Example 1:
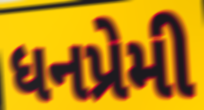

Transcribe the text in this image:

ધનપ્રેમી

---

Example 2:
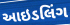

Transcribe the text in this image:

આઇડલિંગ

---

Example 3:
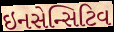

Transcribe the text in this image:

ઇનસેન્સિટિવ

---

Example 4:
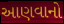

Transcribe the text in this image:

આણવાનો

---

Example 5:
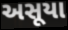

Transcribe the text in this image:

અસૂયા